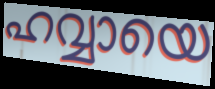
ഹവ്വായെ